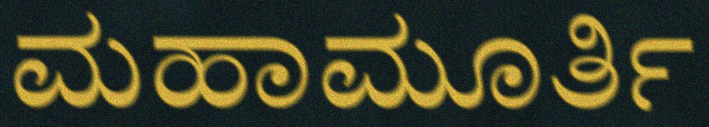
ಮಹಾಮೂರ್ತಿ